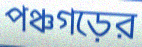
পঞ্চগড়ের